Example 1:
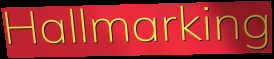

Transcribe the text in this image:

Hallmarking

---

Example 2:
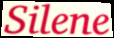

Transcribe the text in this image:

Silene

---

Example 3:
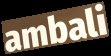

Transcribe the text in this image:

ambali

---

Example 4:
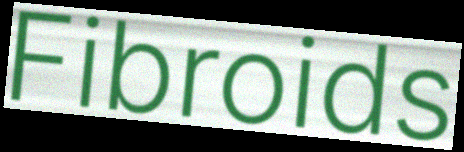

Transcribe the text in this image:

Fibroids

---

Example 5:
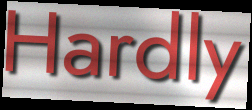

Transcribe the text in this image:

Hardly